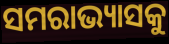
ସମରାଭ୍ୟାସକୁ